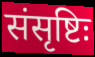
संसृष्टिः